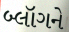
બ્લૉગને